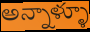
అన్నాళ్ళూ